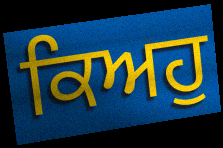
ਕਿਅਹੁ